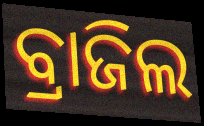
ବ୍ରାଜିଲ